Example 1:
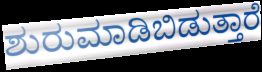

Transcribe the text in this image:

ಶುರುಮಾಡಿಬಿಡುತ್ತಾರೆ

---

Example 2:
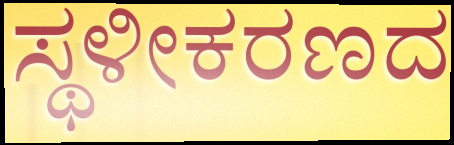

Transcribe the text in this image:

ಸ್ಥಳೀಕರಣದ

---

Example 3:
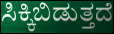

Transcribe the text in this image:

ಸಿಕ್ಕಿಬಿಡುತ್ತದೆ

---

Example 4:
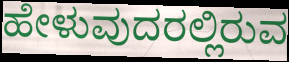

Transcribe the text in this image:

ಹೇಳುವುದರಲ್ಲಿರುವ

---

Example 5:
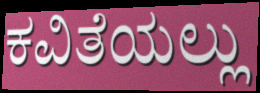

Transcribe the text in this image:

ಕವಿತೆಯಲ್ಲು